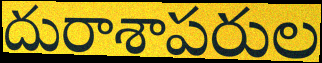
దురాశాపరుల